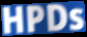
HPDs